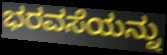
ಭರವಸೆಯನ್ನು